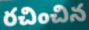
రచించిన